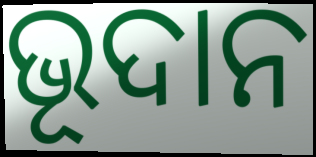
ଭୂଦାନ